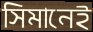
সিমানেই